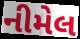
નીમેલ